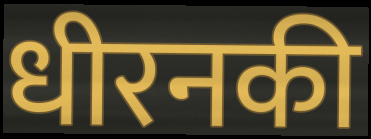
धीरनकी